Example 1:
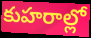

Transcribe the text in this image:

కుహరాల్లో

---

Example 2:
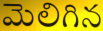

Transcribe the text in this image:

మెలిగిన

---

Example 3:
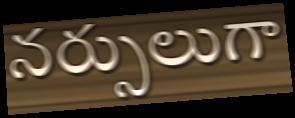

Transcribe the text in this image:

నర్సులుగా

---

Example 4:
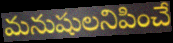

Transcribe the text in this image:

మనుషులనిపించే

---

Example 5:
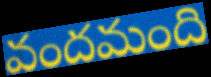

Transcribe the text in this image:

వందమంది